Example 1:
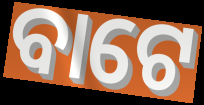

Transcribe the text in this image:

ବାଟେ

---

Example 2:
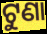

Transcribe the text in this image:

ଟୁଣା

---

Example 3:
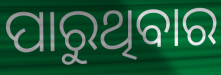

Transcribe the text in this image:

ପାରୁଥିବାର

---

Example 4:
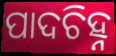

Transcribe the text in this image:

ପାଦଚିହ୍ନ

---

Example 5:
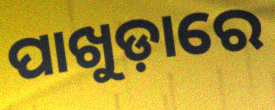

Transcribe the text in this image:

ପାଖୁଡ଼ାରେ